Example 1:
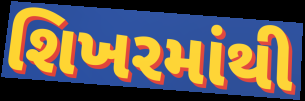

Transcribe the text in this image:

શિખરમાંથી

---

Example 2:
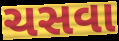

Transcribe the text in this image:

ચસવા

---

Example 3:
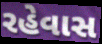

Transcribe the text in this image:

રહેવાસ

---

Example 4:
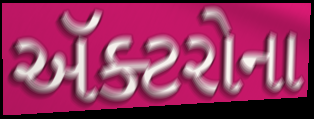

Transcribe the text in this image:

ઍક્ટરોના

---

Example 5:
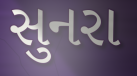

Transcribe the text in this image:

સુનરા